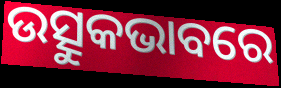
ଉତ୍ସୁକଭାବରେ